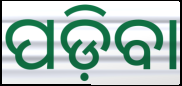
ପଡ଼ିବା